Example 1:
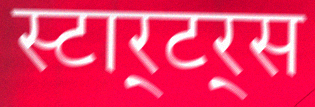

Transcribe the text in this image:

स्टार्टर्स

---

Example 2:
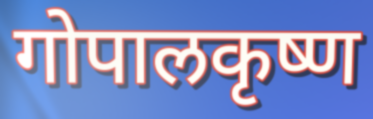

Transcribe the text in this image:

गोपालकृष्ण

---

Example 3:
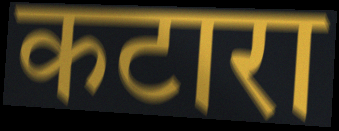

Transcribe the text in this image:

कटारा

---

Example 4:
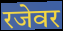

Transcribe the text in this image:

रजेवर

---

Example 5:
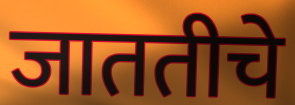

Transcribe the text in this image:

जाततीचे